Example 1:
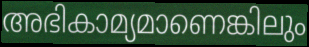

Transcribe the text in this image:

അഭികാമ്യമാണെങ്കിലും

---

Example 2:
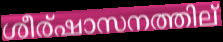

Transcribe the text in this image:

ശീര്ഷാസനത്തില്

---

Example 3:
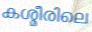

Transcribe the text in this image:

കശ്മീരിലെ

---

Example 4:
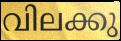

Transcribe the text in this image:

വിലക്കു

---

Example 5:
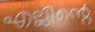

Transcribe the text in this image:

എല്ലിന്റെ